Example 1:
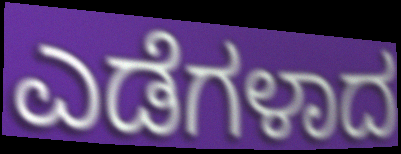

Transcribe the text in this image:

ಎಡೆಗಳಾದ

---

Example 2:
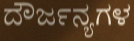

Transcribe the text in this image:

ದೌರ್ಜನ್ಯಗಳ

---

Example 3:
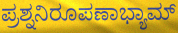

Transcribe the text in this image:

ಪ್ರಶ್ನನಿರೂಪಣಾಭ್ಯಾಮ್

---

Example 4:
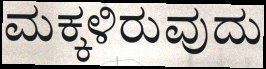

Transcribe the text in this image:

ಮಕ್ಕಳಿರುವುದು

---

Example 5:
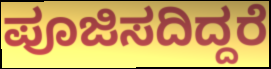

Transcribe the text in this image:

ಪೂಜಿಸದಿದ್ದರೆ